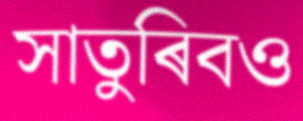
সাতুৰিবও